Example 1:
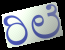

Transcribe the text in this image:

ರಿಲೆ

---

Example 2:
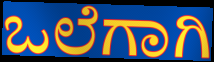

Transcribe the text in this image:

ಒಲೆಗಾಗಿ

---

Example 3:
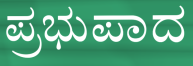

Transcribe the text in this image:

ಪ್ರಭುಪಾದ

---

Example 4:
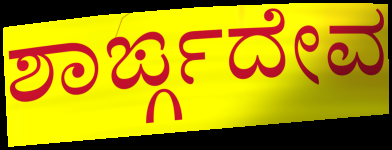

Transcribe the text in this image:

ಶಾರ್ಙ್ಗದೇವ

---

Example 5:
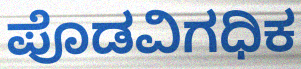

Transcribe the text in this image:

ಪೊಡವಿಗಧಿಕ